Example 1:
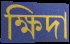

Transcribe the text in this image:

ক্ষিদা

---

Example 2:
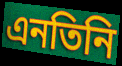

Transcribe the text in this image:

এনতিনি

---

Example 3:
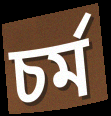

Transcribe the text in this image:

চর্ম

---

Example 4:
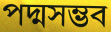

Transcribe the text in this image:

পদ্মসম্ভব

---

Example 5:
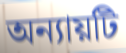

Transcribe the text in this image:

অন্যায়টি